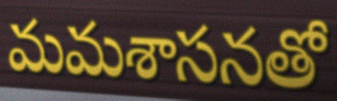
మమశాసనతో